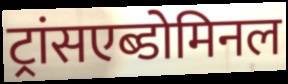
ट्रांसएब्डोमिनल